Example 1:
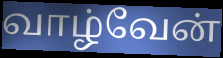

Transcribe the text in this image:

வாழ்வேன்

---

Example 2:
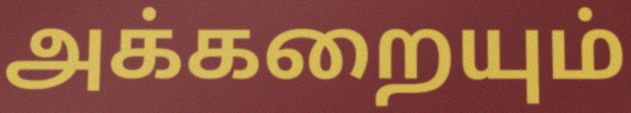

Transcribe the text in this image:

அக்கறையும்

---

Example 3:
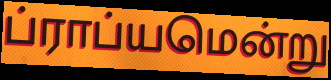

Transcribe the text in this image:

ப்ராப்யமென்று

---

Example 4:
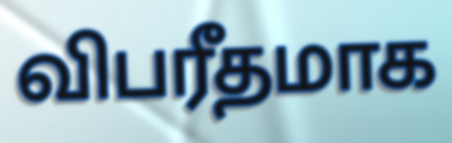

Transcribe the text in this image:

விபரீதமாக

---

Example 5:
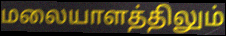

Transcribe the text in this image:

மலையாளத்திலும்